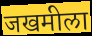
जखमीला